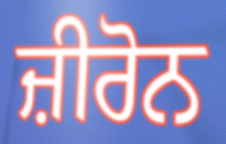
ਜ਼ੀਰੋਨ